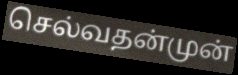
செல்வதன்முன்